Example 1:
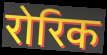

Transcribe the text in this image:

रोरिक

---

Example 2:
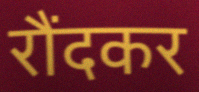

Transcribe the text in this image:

रौंदकर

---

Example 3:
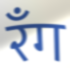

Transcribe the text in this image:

रॅंग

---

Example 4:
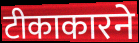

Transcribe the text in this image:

टीकाकारने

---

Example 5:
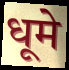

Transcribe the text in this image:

धूमे